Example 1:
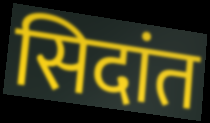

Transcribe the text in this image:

सिदांत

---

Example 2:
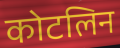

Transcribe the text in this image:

कोटलिन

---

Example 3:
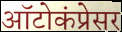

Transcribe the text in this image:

ऑटोकंप्रेसर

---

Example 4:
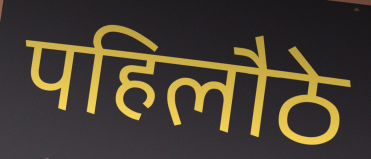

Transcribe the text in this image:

पहिलौठे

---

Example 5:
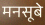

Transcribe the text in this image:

मनसूबे